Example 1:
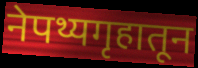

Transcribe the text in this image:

नेपथ्यगृहातून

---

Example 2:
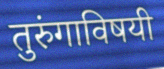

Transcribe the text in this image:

तुरुंगाविषयी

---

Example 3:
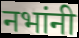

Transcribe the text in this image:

नभांनी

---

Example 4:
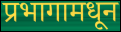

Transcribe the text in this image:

प्रभागामधून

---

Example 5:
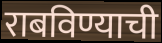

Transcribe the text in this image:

राबविण्याची